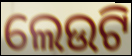
ଲେଉଟି